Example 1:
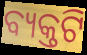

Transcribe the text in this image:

ବ୍ୟକ୍ତଟି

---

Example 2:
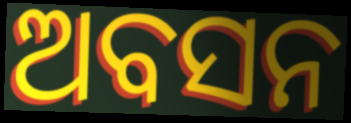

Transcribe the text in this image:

ଅବସନ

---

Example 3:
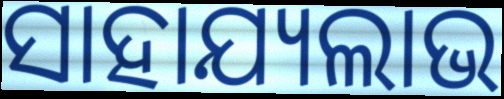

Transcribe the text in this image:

ସାହାଯ୍ୟଲାଭ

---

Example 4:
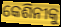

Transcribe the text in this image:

କେଶିନୀକୁ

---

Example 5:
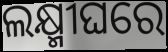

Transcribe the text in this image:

ଲକ୍ଷ୍ମୀଘରେ